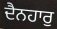
ਦੈਨਹਾਰੁ